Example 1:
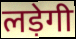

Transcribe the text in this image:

लड़ेगी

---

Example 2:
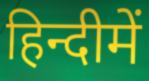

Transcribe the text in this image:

हिन्दीमें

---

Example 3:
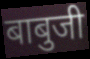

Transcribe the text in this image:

बाबुजी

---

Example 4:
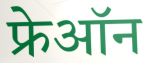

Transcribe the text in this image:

फ्रेऑन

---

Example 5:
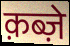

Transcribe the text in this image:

क़ब्ज़े